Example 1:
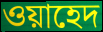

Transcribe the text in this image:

ওয়াহেদ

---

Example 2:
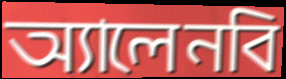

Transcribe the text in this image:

অ্যালেনবি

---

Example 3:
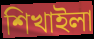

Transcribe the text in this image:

শিখাইলা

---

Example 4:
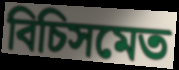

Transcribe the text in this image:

বিচিসমেত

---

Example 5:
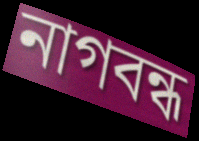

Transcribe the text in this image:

নাগবন্ধ